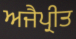
ਅਜੈਪ੍ਰੀਤ